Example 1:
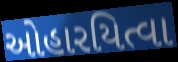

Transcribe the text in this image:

ઓહારયિત્વા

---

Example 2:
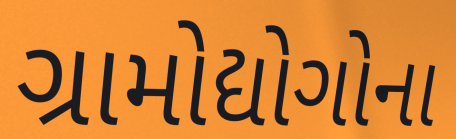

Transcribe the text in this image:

ગ્રામોદ્યોગોના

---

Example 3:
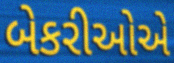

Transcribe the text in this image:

બેકરીઓએ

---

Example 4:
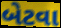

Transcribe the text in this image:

બેટવા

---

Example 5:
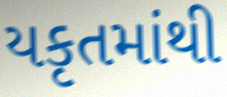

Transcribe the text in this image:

યકૃતમાંથી